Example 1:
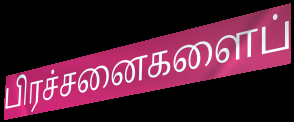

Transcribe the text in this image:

பிரச்சனைகளைப்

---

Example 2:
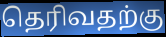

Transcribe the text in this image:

தெரிவதற்கு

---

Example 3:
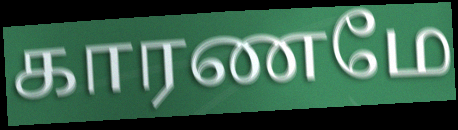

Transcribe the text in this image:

காரணமே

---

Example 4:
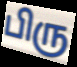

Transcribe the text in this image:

பிரு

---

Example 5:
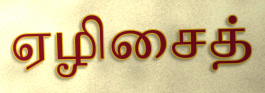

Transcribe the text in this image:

ஏழிசைத்